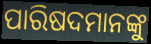
ପାରିଷଦମାନଙ୍କୁ